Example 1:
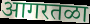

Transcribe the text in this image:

आगरतळा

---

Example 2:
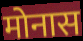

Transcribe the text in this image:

मोनास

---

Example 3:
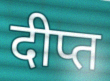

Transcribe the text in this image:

दीप्त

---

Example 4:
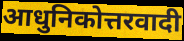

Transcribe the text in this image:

आधुनिकोत्तरवादी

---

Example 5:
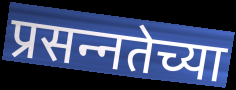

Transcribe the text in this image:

प्रसन्नतेच्या